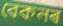
বেকনৰ